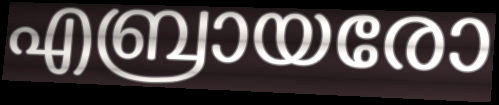
എബ്രായരോ